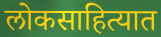
लोकसाहित्यात